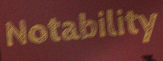
Notability